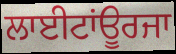
ਲਾਈਟਾਂਊਰਜਾ